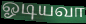
ஓடியவா